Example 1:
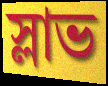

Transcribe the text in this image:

স্লাভ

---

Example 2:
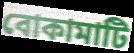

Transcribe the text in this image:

বোকামাটি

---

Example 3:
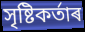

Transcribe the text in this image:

সৃষ্টিকৰ্তাৰ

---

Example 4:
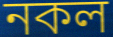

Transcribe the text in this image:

নকল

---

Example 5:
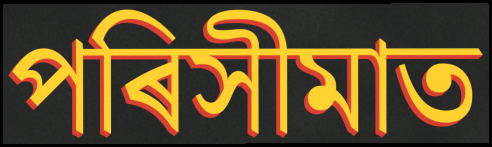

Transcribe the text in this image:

পৰিসীমাত